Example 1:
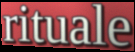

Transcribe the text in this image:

rituale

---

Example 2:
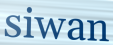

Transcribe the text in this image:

siwan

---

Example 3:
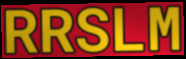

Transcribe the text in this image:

RRSLM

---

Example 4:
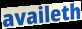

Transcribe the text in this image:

availeth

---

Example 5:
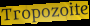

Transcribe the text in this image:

Tropozoite